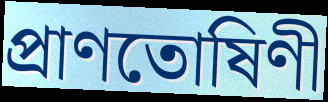
প্ৰাণতোষিণী